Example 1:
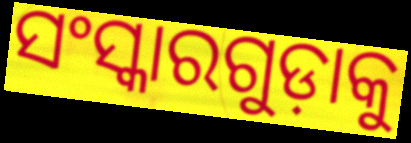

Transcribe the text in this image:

ସଂସ୍କାରଗୁଡ଼ାକୁ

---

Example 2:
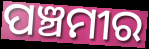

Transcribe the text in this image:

ପଞ୍ଚମୀର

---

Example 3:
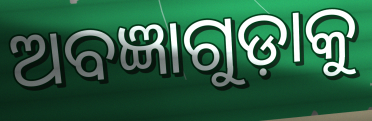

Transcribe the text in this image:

ଅବଜ୍ଞାଗୁଡ଼ାକୁ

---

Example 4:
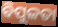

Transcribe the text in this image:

ବିପୁଳତା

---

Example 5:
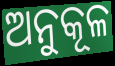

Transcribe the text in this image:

ଅନୁକୂଳ